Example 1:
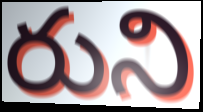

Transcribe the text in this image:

రుని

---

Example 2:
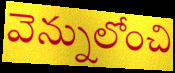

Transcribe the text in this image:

వెన్నులోంచి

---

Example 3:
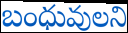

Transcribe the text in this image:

బంధువులని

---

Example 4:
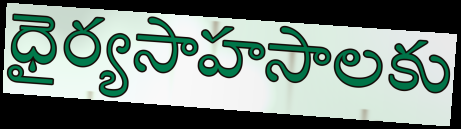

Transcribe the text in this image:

ధైర్యసాహసాలకు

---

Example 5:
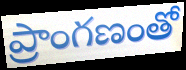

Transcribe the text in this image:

ప్రాంగణంతో